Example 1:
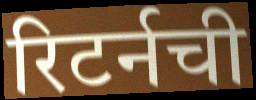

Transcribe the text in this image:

रिटर्नची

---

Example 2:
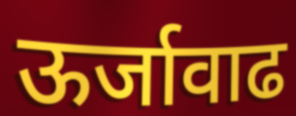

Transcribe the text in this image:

ऊर्जावाढ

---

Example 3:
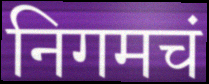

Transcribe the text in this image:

निगमचं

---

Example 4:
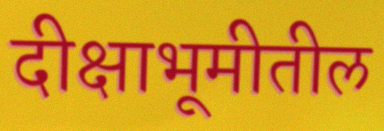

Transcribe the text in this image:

दीक्षाभूमीतील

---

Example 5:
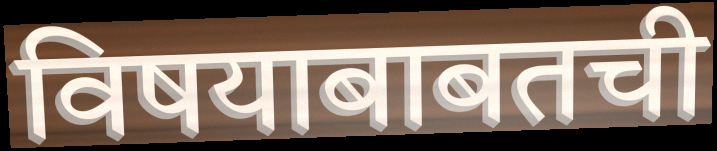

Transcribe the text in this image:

विषयाबाबतची